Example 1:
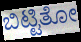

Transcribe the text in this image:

ಬಿಟ್ಟಿತೋ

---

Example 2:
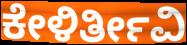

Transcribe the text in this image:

ಕೇಳಿರ್ತೀವಿ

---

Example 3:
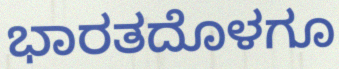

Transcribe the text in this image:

ಭಾರತದೊಳಗೂ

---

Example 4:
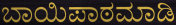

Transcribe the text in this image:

ಬಾಯಿಪಾಠಮಾಡಿ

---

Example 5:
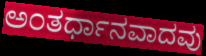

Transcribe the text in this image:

ಅಂತರ್ಧಾನವಾದವು